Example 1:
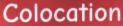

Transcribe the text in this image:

Colocation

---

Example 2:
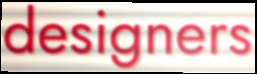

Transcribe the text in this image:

designers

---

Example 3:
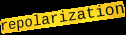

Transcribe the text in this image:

repolarization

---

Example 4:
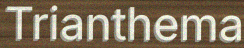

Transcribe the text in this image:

Trianthema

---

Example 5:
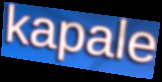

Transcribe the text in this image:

kapale